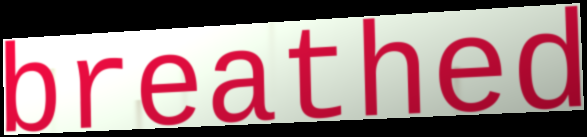
breathed